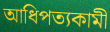
আধিপত্যকামী